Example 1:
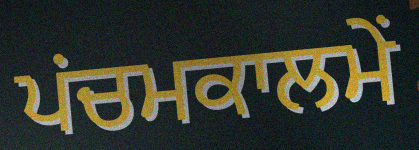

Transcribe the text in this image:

ਪਂਚਮਕਾਲਮੇਂ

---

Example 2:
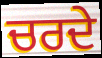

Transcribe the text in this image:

ਚਰਦੇ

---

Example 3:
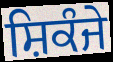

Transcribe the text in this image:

ਸ਼ਿਕੰਜੇ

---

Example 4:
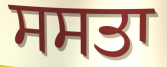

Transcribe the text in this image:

ਸਸਤਾ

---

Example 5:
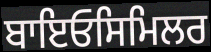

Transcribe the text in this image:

ਬਾਇਓਸਿਮਿਲਰ